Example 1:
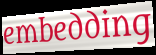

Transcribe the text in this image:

embedding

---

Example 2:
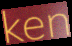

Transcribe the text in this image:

ken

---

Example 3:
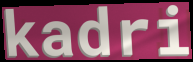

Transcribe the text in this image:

kadri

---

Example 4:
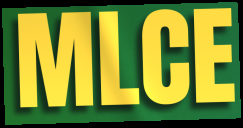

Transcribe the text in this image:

MLCE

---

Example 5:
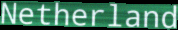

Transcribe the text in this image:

Netherland